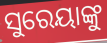
ସୁରେୟାଙ୍କୁ